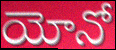
యోనో